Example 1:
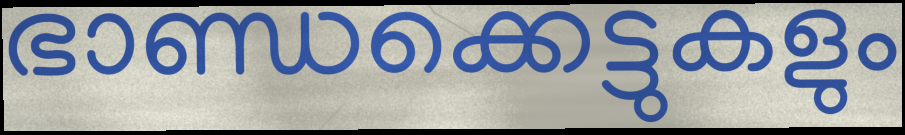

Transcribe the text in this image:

ഭാണ്ഡക്കെട്ടുകളും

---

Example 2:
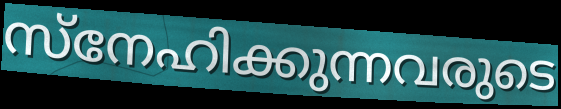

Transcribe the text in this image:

സ്നേഹിക്കുന്നവരുടെ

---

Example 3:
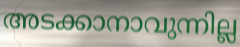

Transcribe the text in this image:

അടക്കാനാവുന്നില്ല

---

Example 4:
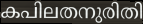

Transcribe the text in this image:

കപിലതനുരിതി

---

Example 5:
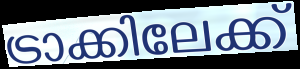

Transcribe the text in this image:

ട്രാക്കിലേക്ക്